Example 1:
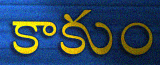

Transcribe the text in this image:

కాకుం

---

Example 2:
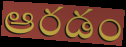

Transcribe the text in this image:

ఆరడం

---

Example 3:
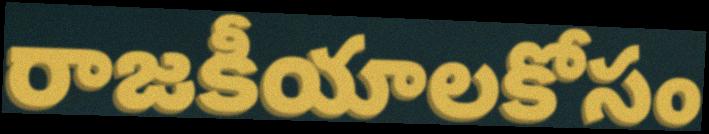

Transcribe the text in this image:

రాజకీయాలకోసం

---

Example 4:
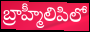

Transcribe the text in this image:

బ్రాహ్మీలిపిలో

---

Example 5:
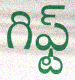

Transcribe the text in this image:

గిఫ్ట్